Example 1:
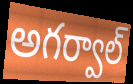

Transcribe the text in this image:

అగర్వాల్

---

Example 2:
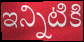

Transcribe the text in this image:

ఇన్నిటికి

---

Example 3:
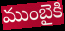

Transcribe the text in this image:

ముంబైకి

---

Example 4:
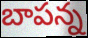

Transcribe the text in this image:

బాపన్న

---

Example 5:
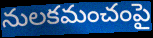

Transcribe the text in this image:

నులకమంచంపై